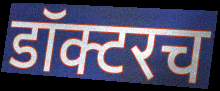
डॉक्टरच